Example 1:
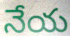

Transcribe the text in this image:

నేయ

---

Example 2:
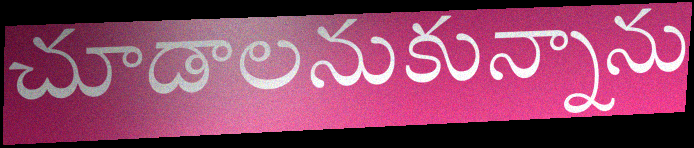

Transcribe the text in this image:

చూడాలనుకున్నాను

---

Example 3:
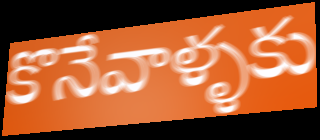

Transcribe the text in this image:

కొనేవాళ్ళకు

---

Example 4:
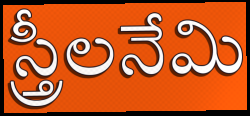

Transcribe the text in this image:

స్త్రీలనేమి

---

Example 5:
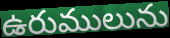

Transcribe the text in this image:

ఉరుములును